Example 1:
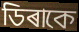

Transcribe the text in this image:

ডিৰাকে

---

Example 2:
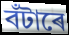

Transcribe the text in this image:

বঁটাৰে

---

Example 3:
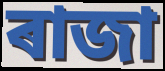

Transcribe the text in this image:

ৰাজা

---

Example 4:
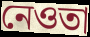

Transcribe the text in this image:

নেওতা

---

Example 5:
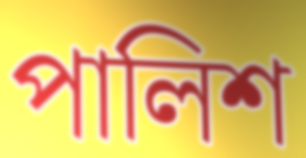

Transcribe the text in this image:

পালিশ